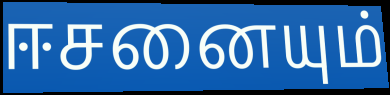
ஈசனையும்